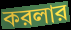
করলার